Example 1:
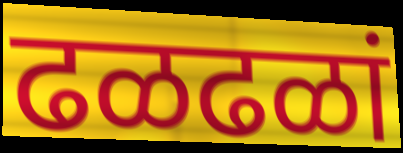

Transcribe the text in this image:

ढळढळां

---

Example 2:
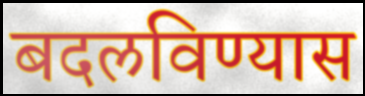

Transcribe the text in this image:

बदलविण्यास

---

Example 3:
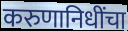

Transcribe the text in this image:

करुणानिधींचा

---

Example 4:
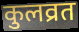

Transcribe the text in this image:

कुलव्रत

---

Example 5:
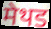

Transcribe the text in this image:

मेथड